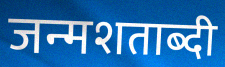
जन्मशताब्दी